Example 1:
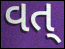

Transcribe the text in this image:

વત્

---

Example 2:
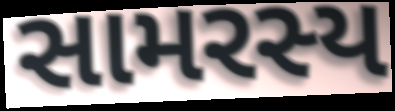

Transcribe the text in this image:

સામરસ્ય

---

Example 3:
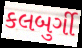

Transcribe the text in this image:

કલબુર્ગી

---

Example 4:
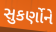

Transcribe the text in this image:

સુકર્ણોને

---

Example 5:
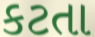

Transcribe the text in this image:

કટતા